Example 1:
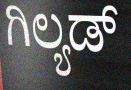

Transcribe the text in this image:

ಗಿಲ್ಯಡ್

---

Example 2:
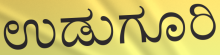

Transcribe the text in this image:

ಉಡುಗೂರಿ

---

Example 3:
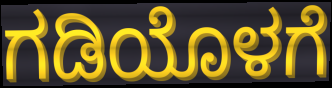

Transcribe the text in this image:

ಗಡಿಯೊಳಗೆ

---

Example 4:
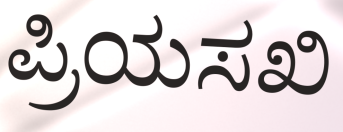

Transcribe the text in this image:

ಪ್ರಿಯಸಖಿ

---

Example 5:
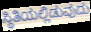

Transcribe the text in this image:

ಸ್ಥಿತಿಯಲ್ಲಿಡುವುದು